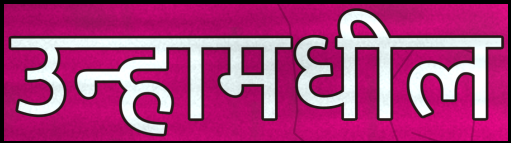
उन्हामधील